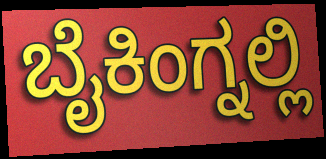
ಬೈಕಿಂಗ್ನಲ್ಲಿ